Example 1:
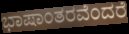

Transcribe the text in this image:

ಭಾಷಾಂತರವೆಂದರೆ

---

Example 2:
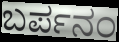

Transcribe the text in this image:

ಬರ್ಪನಂ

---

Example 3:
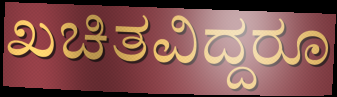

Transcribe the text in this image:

ಖಚಿತವಿದ್ದರೂ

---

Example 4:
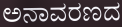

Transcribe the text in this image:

ಅನಾವರಣದ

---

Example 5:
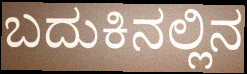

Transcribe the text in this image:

ಬದುಕಿನಲ್ಲಿನ